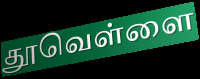
தூவெள்ளை